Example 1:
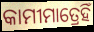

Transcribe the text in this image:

କାମୀମାତ୍ରେହିଁ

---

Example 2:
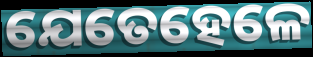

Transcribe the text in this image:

ଯେତେହେଳେ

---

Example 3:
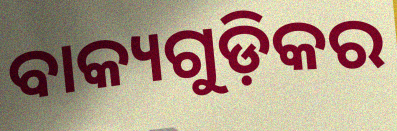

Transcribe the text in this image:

ବାକ୍ୟଗୁଡ଼ିକର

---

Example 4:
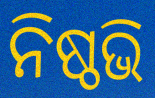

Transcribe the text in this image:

ନିଷ୍ଠଭି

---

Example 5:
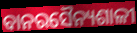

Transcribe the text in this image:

ବାନରସୈନ୍ୟଶାଳୀ